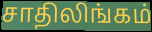
சாதிலிங்கம்